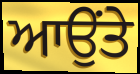
ਆਉਂਤੇ